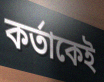
কর্তাকেই